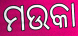
ମଉକା